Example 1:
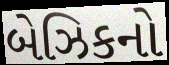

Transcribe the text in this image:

બેઝિકનો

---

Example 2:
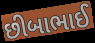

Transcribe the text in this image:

છીબાભાઈ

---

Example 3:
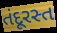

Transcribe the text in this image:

તંદૂરસ્ત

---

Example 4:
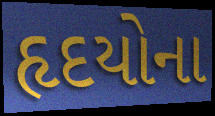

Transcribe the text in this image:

હૃદયોના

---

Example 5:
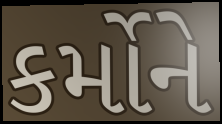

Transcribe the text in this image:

કર્મોને